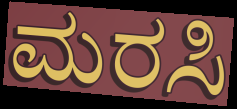
ಮರಸಿ